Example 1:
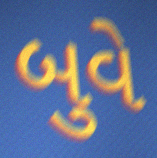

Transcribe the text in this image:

બુવે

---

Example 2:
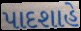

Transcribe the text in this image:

પાદશાહે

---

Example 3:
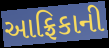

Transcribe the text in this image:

આફ્રિકાની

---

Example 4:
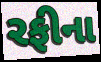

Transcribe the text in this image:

રફીના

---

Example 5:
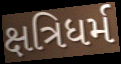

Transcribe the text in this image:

ક્ષત્રિધર્મ